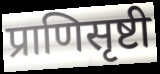
प्राणिसृष्टी